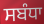
ਸਬੰਧਾ